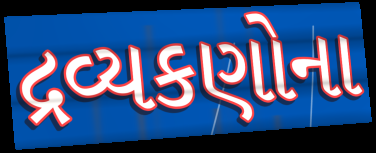
દ્રવ્યકણોના